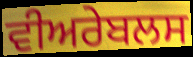
ਵੀਅਰੇਬਲਸ